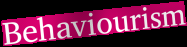
Behaviourism